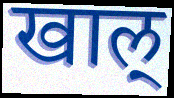
खाल्